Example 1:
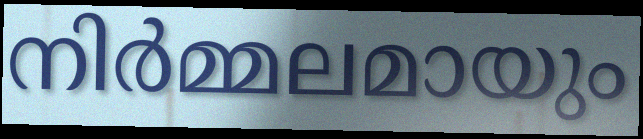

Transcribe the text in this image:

നിർമ്മലമായും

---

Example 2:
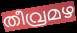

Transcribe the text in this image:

തീവ്രമഴ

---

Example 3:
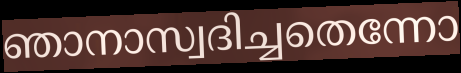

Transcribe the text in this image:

ഞാനാസ്വദിച്ചതെന്നോ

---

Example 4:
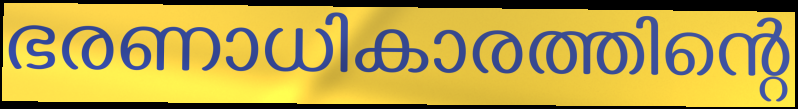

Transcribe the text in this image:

ഭരണാധികാരത്തിന്റെ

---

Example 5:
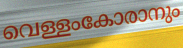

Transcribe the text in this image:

വെള്ളംകോരാനും